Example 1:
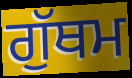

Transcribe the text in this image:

ਗੁੱਥਮ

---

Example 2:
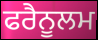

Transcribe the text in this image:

ਫਰੈਨੂਲਮ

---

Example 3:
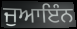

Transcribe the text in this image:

ਜੁਆਇੰਨ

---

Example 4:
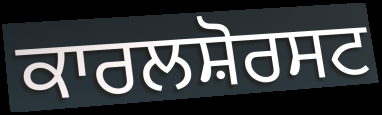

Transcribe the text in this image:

ਕਾਰਲਸ਼ੋਰਸਟ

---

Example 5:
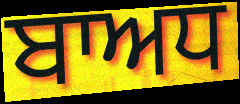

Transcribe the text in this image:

ਬਾਅਧ